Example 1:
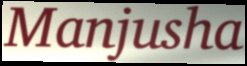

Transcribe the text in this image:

Manjusha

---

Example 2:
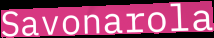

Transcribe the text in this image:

Savonarola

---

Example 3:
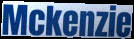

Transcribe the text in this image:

Mckenzie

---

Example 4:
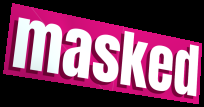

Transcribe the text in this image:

masked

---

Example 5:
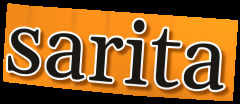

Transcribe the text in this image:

sarita